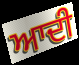
ਆਦੀ